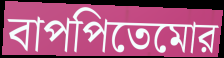
বাপপিতেমোর